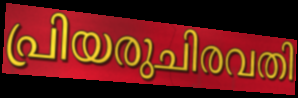
പ്രിയരുചിരവതി